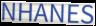
NHANES